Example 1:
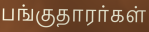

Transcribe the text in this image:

பங்குதாரர்கள்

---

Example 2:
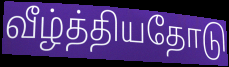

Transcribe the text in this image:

வீழ்த்தியதோடு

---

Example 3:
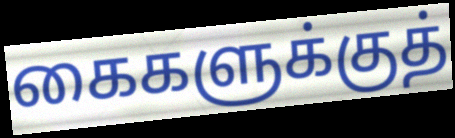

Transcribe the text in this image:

கைகளுக்குத்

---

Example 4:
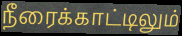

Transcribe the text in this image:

நீரைக்காட்டிலும்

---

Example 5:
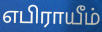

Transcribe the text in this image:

எபிராயீம்